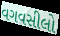
વગવસીલો